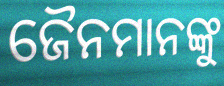
ଜୈନମାନଙ୍କୁ